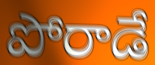
పోరాడే